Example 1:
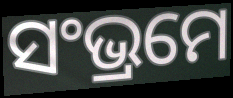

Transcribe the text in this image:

ସଂଭ୍ରମେ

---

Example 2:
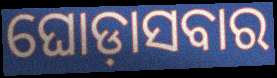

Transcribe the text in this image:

ଘୋଡ଼ାସବାର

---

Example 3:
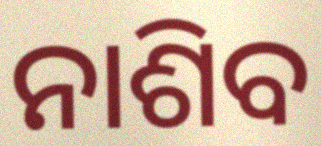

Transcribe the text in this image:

ନାଶିବ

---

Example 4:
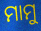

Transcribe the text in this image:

ମାମୁ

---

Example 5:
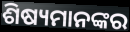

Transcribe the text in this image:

ଶିଷ୍ୟମାନଙ୍କର